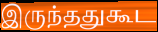
இருந்ததுகூட